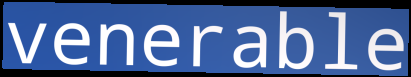
venerable